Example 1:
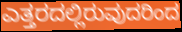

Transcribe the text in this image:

ಎತ್ತರದಲ್ಲಿರುವುದರಿಂದ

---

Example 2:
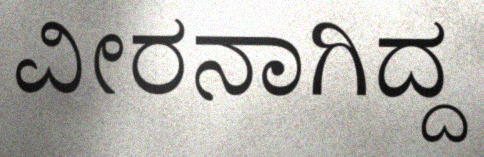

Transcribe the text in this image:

ವೀರನಾಗಿದ್ದ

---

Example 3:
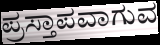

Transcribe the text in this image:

ಪ್ರಸ್ತಾಪವಾಗುವ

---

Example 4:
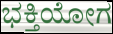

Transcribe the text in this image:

ಭಕ್ತಿಯೋಗ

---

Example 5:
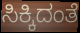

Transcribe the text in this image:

ಸಿಕ್ಕಿದಂತೆ